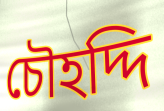
চৌহদ্দি